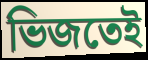
ভিজতেই